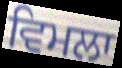
ਵਿਮਲਾ